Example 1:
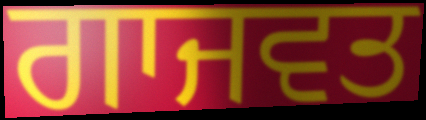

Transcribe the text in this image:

ਗਾਜਵਤ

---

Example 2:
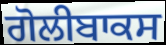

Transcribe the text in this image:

ਗੋਲੀਬਾਕਸ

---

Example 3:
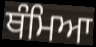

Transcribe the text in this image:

ਥੰਮਿਆ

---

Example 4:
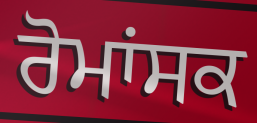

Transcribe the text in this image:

ਰੋਮਾਂਸਕ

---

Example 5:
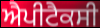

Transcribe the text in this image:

ਐਪੀਟੈਕਸੀ